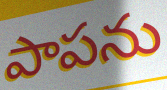
పాపను